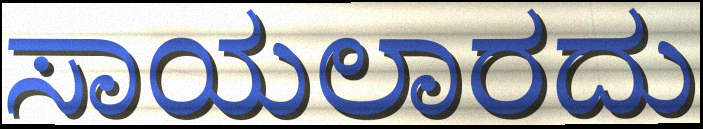
ಸಾಯಲಾರದು